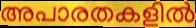
അപാരതകളിൽ